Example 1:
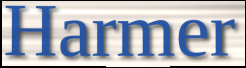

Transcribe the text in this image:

Harmer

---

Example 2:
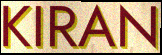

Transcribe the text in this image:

KIRAN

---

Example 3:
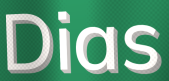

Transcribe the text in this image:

Dias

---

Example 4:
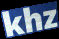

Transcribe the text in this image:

khz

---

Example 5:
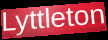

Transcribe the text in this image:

Lyttleton